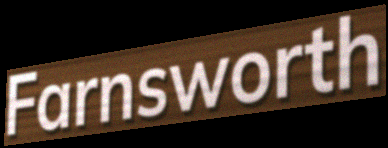
Farnsworth